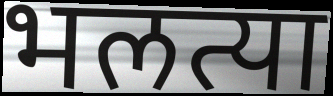
भलत्या